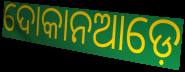
ଦୋକାନଆଡ଼େ